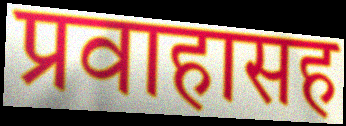
प्रवाहासह